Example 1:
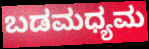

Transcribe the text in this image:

ಬಡಮಧ್ಯಮ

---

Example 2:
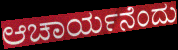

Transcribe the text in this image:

ಆಚಾರ್ಯನೆಂದು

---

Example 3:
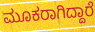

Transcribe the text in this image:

ಮೂಕರಾಗಿದ್ದಾರೆ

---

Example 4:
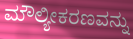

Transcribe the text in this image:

ಮೌಲ್ಯೀಕರಣವನ್ನು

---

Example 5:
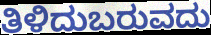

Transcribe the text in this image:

ತಿಳಿದುಬರುವದು